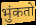
भुंकतो